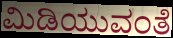
ಮಿಡಿಯುವಂತೆ